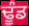
ਢੂੰਡ